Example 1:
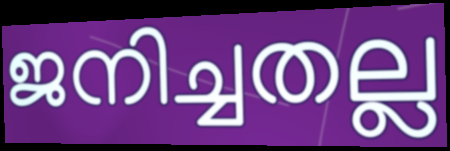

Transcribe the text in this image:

ജനിച്ചതല്ല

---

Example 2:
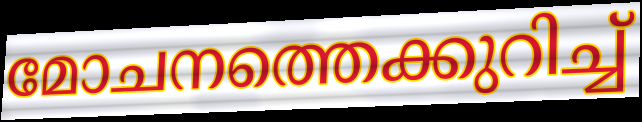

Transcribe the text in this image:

മോചനത്തെക്കുറിച്ച്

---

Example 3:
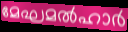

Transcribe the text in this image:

മേഘമൽഹാർ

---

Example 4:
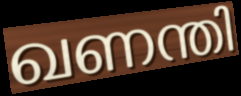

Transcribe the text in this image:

ഖണന്തി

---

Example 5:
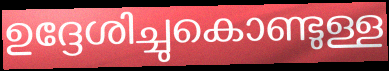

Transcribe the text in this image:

ഉദ്ദേശിച്ചുകൊണ്ടുള്ള